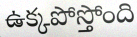
ఉక్కపోస్తోంది